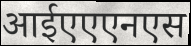
आईएएएनएस